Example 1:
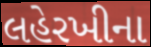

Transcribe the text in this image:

લહેરખીના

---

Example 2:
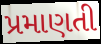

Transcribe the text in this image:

પ્રમાણતી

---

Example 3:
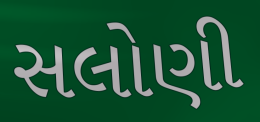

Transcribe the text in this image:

સલોણી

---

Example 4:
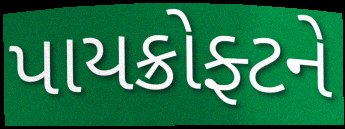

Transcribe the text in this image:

પાયક્રોફ્ટને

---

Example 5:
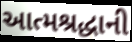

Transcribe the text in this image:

આત્મશ્રદ્ધાની